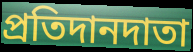
প্রতিদানদাতা